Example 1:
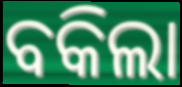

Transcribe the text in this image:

ବକିଲା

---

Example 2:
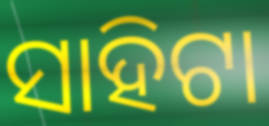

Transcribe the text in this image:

ସାହିଟା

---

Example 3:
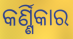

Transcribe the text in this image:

କର୍ଣ୍ଣିକାର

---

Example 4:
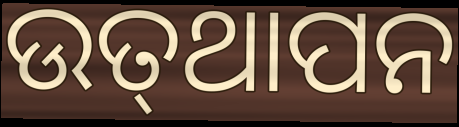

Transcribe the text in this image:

ଉତ୍‌ଥାପନ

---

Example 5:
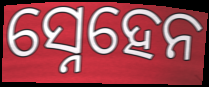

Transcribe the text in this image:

ସ୍ନେହେନ